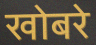
खोबरे